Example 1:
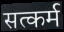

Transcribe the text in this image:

सत्कर्म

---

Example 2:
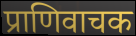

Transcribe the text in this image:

प्राणिवाचक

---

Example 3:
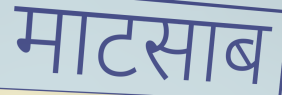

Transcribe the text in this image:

माटसाब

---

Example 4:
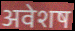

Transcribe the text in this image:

अवेशष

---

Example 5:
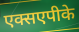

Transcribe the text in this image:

एक्सएपीके